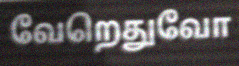
வேறெதுவோ